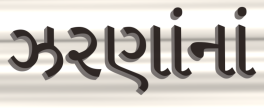
ઝરણાંનાં